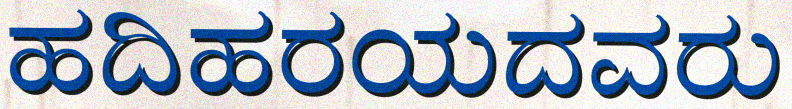
ಹದಿಹರಯದವರು